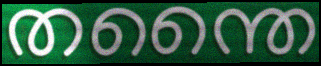
തന്തൈ